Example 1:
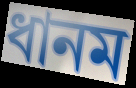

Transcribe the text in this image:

ধানম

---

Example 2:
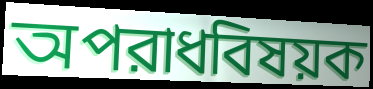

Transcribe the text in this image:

অপরাধবিষয়ক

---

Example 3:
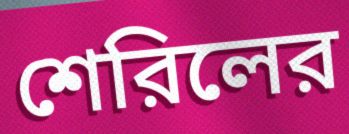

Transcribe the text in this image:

শেরিলের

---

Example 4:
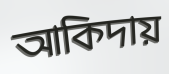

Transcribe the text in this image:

আকিদায়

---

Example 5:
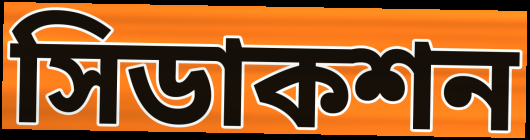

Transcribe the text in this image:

সিডাকশন